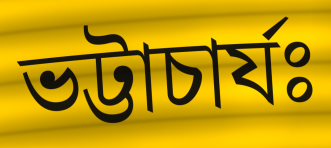
ভট্টাচাৰ্যঃ